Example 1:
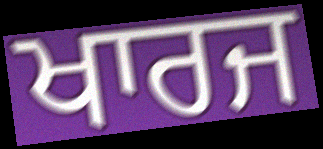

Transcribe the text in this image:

ਖਾਰਜ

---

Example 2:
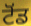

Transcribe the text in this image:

ਟੋਂਡ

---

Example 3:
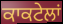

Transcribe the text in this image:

ਕਾਕਟੇਲਾਂ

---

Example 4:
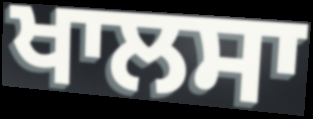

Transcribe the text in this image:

ਖਾਲਸਾ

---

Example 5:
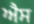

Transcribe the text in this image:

ਐਸ